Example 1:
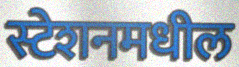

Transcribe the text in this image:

स्टेशनमधील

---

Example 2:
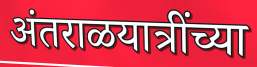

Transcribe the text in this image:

अंतराळयात्रींच्या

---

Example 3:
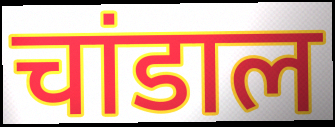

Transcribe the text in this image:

चांडाल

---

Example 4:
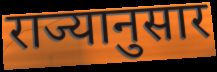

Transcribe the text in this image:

राज्यानुसार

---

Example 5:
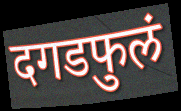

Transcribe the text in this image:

दगडफुलं